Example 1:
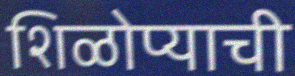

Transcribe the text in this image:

शिळोप्याची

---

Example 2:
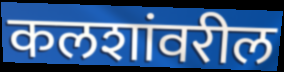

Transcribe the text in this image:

कलशांवरील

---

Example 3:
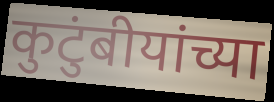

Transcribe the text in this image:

कुटुंबीयांच्या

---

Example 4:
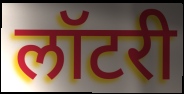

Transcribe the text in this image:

लॉटरी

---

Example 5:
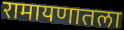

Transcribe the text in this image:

रामायणातला